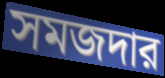
সমজদার